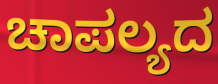
ಚಾಪಲ್ಯದ